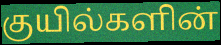
குயில்களின்